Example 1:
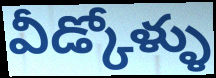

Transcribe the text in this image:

వీడ్కోళ్ళు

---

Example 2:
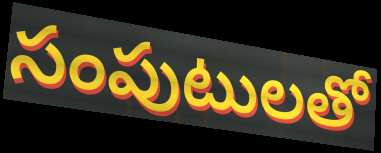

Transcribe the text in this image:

సంపుటులతో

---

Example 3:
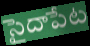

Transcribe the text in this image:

సైదాపేట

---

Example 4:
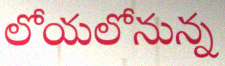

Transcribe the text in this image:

లోయలోనున్న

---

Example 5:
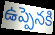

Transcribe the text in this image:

ఉప్పెనకి